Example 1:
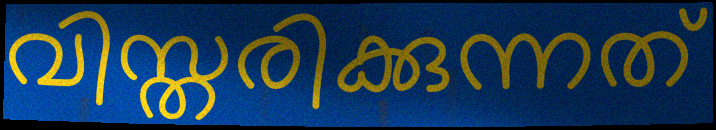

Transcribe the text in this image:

വിസ്തരിക്കുന്നത്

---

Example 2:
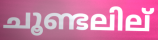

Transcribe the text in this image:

ചൂണ്ടലില്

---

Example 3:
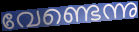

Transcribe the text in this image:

വേണ്ടെന്നു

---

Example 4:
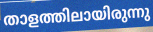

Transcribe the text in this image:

താളത്തിലായിരുന്നു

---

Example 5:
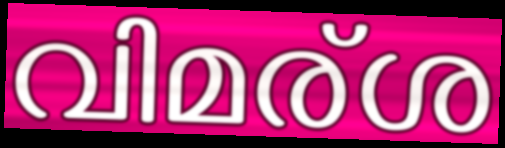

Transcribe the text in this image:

വിമര്ശ